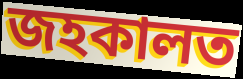
জহকালত